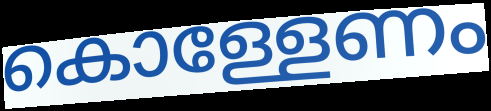
കൊള്ളേണം